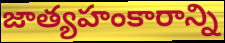
జాత్యహంకారాన్ని